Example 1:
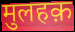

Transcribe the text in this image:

मुलहक़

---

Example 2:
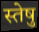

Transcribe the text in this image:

स्तेषु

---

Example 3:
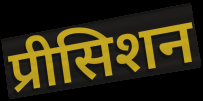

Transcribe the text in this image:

प्रीसिशन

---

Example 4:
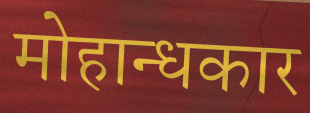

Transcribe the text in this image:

मोहान्धकार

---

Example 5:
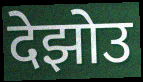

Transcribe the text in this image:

देझोउ